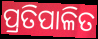
ପ୍ରତିପାଳିତ